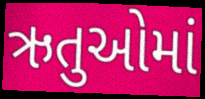
ઋતુઓમાં